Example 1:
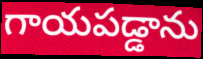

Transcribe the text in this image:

గాయపడ్డాను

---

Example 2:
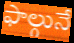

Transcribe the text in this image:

ఫాల్గునే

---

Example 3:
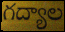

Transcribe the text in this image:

గద్యాల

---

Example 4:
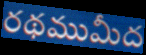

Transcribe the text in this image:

రథముమీద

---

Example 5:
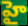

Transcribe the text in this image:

హై